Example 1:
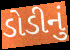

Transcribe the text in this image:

ડોડીનું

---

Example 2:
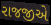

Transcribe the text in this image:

રાજજીએ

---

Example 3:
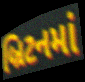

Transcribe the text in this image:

બ્રિટનમાં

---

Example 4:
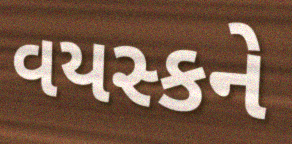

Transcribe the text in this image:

વયસ્કને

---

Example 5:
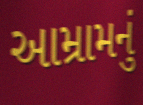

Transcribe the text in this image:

આમ્રામનું